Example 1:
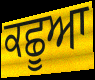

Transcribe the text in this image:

ਕਛੂਆ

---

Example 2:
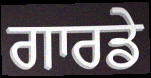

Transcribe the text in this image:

ਗਾਰਡੇ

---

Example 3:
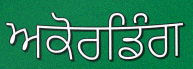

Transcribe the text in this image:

ਅਕੋਰਡਿੰਗ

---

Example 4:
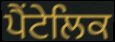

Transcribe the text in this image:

ਪੈਂਟੇਲਿਕ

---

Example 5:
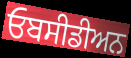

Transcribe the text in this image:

ਓਬਸੀਡੀਅਨ